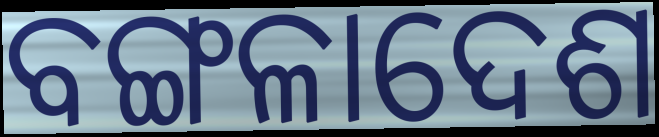
ବଙ୍ଗଳାଦେଶ